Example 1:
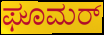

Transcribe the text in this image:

ಘೂಮರ್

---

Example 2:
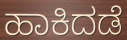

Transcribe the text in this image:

ಹಾಕಿದಡೆ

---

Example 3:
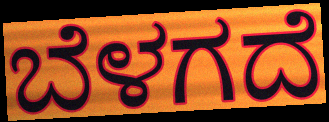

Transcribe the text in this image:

ಬೆಳಗದೆ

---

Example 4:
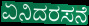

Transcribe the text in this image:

ಏನಿದರಸನೆ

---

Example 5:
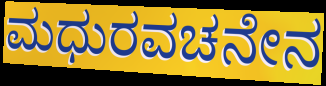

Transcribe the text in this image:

ಮಧುರವಚನೇನ